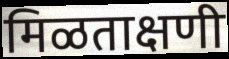
मिळताक्षणी